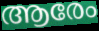
ആരേം